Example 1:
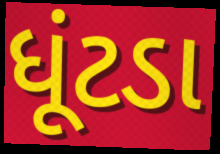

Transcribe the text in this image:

ધૂંટડા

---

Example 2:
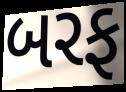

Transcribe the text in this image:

બરફ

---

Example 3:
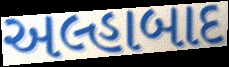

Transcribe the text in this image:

અલ્હાબાદ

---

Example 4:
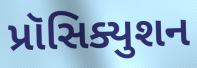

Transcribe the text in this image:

પ્રૉસિક્યુશન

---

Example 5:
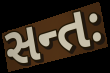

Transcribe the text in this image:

સન્તઃ